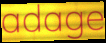
adage